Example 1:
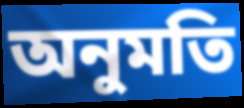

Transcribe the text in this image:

অনুমতি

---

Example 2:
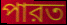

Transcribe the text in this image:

পারত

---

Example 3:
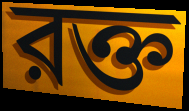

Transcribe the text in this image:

রক্ত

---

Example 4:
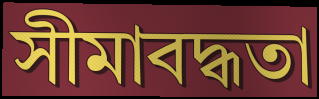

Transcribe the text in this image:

সীমাবদ্ধতা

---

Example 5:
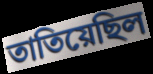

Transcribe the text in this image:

তাতিয়েছিল